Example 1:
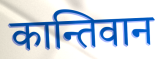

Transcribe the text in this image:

कान्तिवान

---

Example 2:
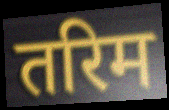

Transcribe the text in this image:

तरिम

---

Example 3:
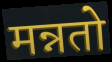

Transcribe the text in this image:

मन्नतो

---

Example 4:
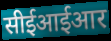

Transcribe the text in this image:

सीईआईआर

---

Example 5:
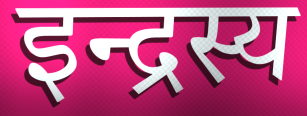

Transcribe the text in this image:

इन्द्रस्य